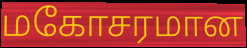
மகோசரமான